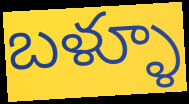
బళ్ళూ